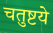
चतुष्टये